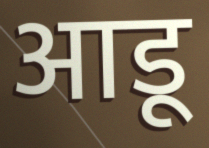
आडू